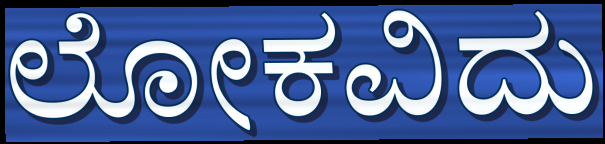
ಲೋಕವಿದು